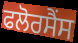
ਫਲੋਰਸੈਂਸ